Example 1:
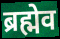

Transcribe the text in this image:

ब्रह्मेव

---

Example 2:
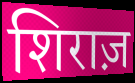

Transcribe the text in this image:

शिराज़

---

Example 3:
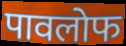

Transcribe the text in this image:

पावलोफ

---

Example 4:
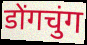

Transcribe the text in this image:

डोंगचुंग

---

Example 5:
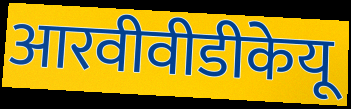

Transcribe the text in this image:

आरवीवीडीकेयू